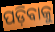
ପଡ଼ିବାକୁ